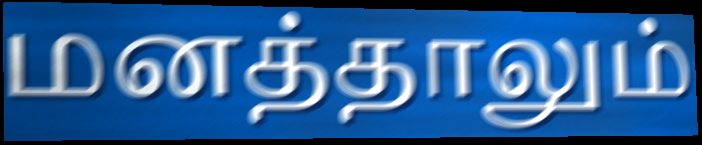
மனத்தாலும்